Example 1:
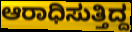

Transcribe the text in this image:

ಆರಾಧಿಸುತ್ತಿದ್ದ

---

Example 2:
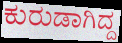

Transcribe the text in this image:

ಕುರುಡಾಗಿದ್ದ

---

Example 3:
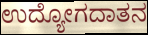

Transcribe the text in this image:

ಉದ್ಯೋಗದಾತನ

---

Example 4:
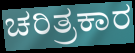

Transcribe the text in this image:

ಚರಿತ್ರಕಾರ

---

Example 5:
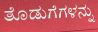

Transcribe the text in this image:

ತೊಡುಗೆಗಳನ್ನು